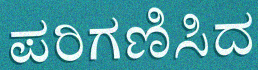
ಪರಿಗಣಿಸಿದ